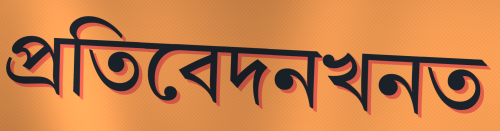
প্ৰতিবেদনখনত